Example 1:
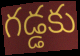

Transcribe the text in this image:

గడ్డకు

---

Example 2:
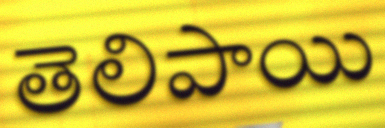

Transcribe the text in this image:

తెలిపాయి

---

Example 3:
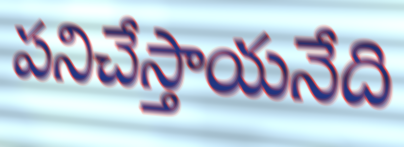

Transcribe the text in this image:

పనిచేస్తాయనేది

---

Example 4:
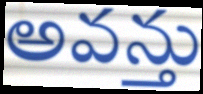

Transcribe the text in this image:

అవన్తు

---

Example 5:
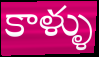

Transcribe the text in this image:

కాళ్ళు